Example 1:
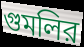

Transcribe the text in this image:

গুমলির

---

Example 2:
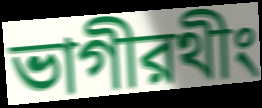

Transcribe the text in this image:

ভাগীরথীং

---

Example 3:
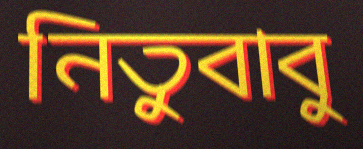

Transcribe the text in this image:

নিতুবাবু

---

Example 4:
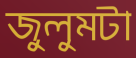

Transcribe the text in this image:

জুলুমটা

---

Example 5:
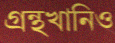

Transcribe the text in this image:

গ্রন্থখানিও